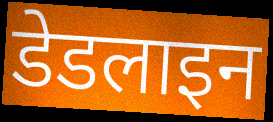
डेडलाइन